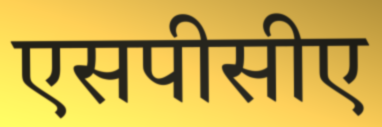
एसपीसीए